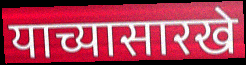
याच्यासारखे